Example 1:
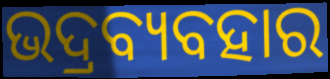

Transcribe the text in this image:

ଭଦ୍ରବ୍ୟବହାର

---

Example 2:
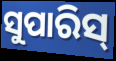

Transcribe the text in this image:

ସୁପାରିସ୍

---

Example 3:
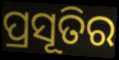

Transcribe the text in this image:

ପ୍ରସୂତିର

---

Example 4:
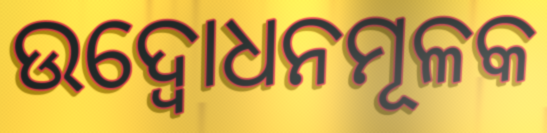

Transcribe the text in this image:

ଉଦ୍ବୋଧନମୂଳକ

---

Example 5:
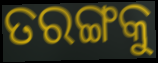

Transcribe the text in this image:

ତରଙ୍ଗକୁ